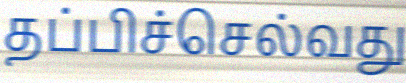
தப்பிச்செல்வது